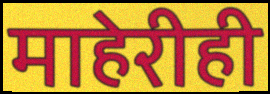
माहेरीही